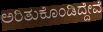
ಅರಿತುಕೊಂಡಿದ್ದೇವೆ